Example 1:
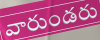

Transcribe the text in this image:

వారుండరు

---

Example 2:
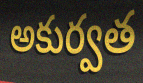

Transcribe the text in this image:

అకుర్వత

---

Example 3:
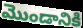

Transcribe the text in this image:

మొండానికి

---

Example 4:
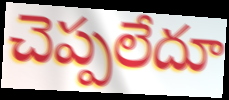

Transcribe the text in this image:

చెప్పలేదూ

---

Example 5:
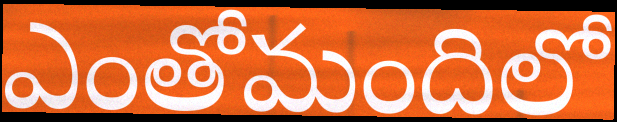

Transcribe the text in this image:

ఎంతోమందిలో